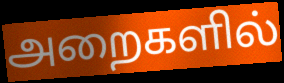
அறைகளில்